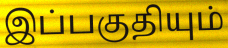
இப்பகுதியும்